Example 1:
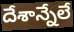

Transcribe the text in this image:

దేశాన్నేలే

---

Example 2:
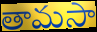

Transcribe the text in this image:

తామసా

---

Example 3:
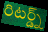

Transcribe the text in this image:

రిటర్డ్న్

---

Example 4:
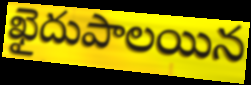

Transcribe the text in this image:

ఖైదుపాలయిన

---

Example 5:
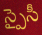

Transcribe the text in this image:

స్పైసీ